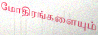
மோதிரங்களையும்